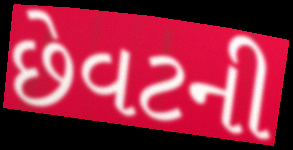
છેવટની